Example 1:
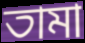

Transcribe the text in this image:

তামা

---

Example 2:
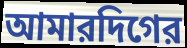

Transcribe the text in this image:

আমারদিগের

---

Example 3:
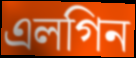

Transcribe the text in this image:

এলগিন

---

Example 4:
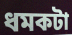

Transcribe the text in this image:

ধমকটা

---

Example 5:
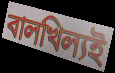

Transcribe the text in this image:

বালখিল্যই